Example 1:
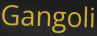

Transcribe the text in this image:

Gangoli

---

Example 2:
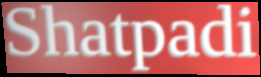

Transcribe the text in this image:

Shatpadi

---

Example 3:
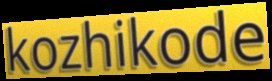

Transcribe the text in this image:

kozhikode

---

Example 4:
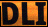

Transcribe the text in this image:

DLI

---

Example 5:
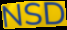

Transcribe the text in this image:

NSD